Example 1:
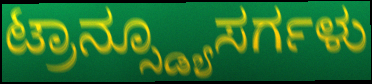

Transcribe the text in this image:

ಟ್ರಾನ್ಸ್ಡ್ಯೂಸರ್ಗಳು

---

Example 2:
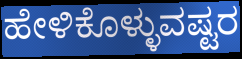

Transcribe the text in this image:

ಹೇಳಿಕೊಳ್ಳುವಷ್ಟರ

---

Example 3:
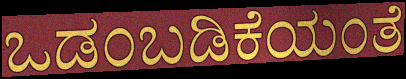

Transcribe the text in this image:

ಒಡಂಬಡಿಕೆಯಂತೆ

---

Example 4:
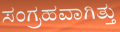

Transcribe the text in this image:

ಸಂಗ್ರಹವಾಗಿತ್ತು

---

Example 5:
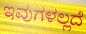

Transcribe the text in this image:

ಇವುಗಳಲ್ಲದೆ